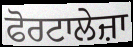
ਫੋਰਟਾਲੇਜ਼ਾ